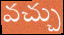
వచ్చు